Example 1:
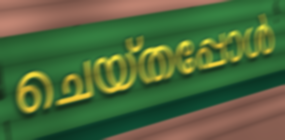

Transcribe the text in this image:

ചെയ്‌തപ്പോൾ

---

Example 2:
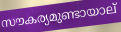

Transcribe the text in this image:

സൗകര്യമുണ്ടായാല്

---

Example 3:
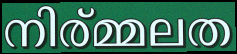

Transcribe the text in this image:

നിര്മ്മലത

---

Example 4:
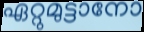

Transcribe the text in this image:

ഏറ്റുമുട്ടാനോ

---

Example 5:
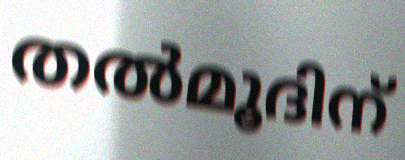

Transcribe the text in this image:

തൽമൂദിന്